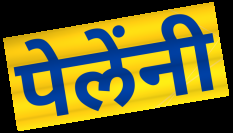
पेलेंनी